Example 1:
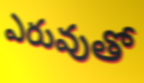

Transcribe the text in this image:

ఎరువుతో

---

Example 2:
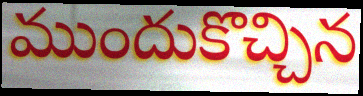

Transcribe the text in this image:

ముందుకొచ్చిన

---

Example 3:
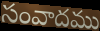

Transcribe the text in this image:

సంవాదము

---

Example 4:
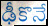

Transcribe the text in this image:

ఢీకొనే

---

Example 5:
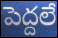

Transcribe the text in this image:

పెద్దలే